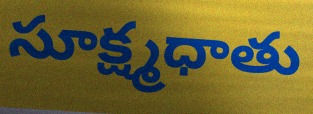
సూక్ష్మధాతు